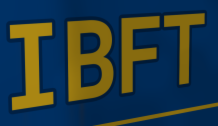
IBFT